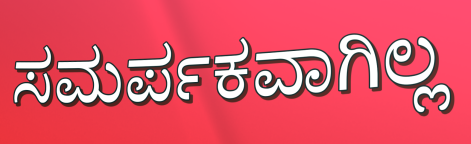
ಸಮರ್ಪಕವಾಗಿಲ್ಲ